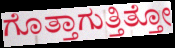
ಗೊತ್ತಾಗುತ್ತಿತ್ತೋ